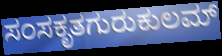
ಸಂಸಕೃತಗುರುಕುಲಮ್